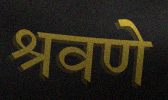
श्रवणे